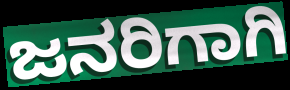
ಜನರಿಗಾಗಿ